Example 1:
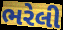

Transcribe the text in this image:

ભરેલી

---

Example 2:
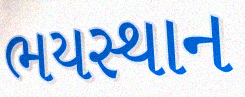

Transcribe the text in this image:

ભયસ્થાન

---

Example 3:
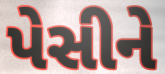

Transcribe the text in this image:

પેસીને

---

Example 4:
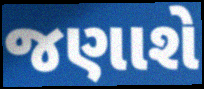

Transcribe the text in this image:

જણાશે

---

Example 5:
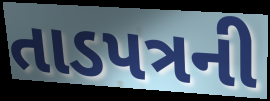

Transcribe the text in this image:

તાડપત્રની